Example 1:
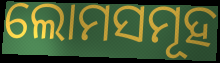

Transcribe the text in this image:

ଲୋମସମୂହ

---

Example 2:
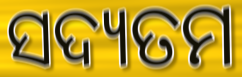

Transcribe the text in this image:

ସଦ୍ୟତମ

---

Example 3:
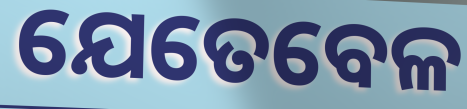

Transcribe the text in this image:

ଯେତେବେଳ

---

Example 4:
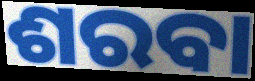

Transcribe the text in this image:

ଶରବା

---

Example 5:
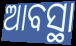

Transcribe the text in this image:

ଆବସ୍ଥା